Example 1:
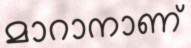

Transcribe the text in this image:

മാറാനാണ്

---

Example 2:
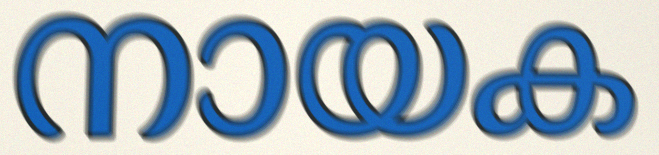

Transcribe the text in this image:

നായക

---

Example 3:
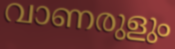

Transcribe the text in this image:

വാണരുളും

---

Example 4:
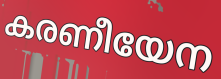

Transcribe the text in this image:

കരണീയേന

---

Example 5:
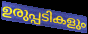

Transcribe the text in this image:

ഉരുപ്പടികളും